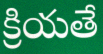
క్రియతే